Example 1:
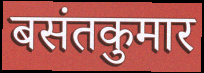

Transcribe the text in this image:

बसंतकुमार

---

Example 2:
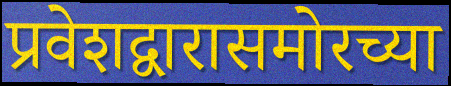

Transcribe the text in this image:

प्रवेशद्वारासमोरच्या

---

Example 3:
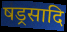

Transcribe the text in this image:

षड्रसादि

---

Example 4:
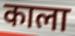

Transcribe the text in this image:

काला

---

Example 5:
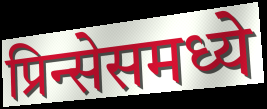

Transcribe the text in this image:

प्रिन्सेसमध्ये